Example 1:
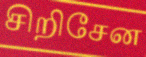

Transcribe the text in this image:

சிறிசேன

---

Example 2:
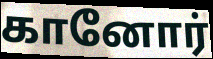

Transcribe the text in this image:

கானோர்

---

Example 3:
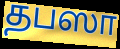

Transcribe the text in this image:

தபஸா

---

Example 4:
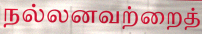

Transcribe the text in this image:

நல்லனவற்றைத்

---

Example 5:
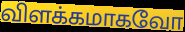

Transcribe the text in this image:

விளக்கமாகவோ